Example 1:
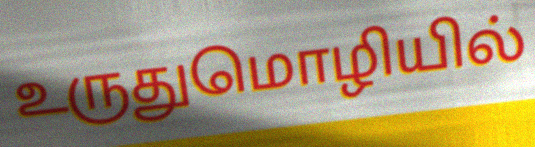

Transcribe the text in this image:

உருதுமொழியில்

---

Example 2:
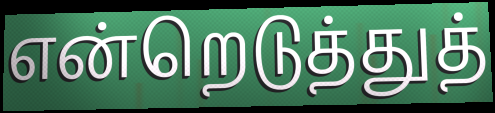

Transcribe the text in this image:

என்றெடுத்துத்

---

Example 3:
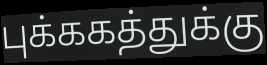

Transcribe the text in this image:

புக்ககத்துக்கு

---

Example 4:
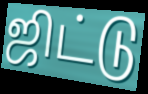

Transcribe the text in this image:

ஜிட்டு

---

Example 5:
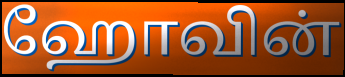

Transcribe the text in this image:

ஹோவின்